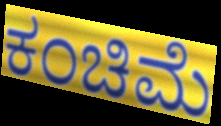
ಕಂಚಿಮೆ